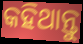
କହିଥାନ୍ତୁ